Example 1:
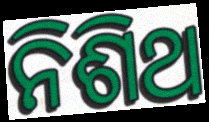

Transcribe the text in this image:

ନିଶିଥ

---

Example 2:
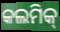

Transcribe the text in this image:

କଲମିକ୍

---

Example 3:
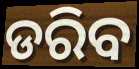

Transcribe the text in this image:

ଡରିବ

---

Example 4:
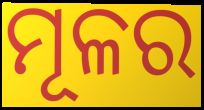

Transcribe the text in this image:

ମୂଳର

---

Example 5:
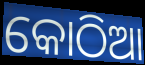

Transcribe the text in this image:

କୋଠିଆ